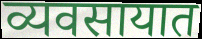
व्यवसायात